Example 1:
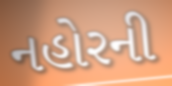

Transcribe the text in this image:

નહોરની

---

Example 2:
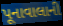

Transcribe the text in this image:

પૂનાવાલાની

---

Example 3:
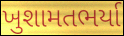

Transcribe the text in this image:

ખુશામતભર્યા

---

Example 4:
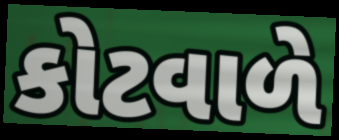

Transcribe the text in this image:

કોટવાળે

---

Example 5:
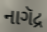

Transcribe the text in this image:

નાગૅદ્ર